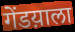
गेंडय़ाला